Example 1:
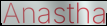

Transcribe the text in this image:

Anastha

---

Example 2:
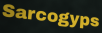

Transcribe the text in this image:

Sarcogyps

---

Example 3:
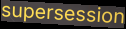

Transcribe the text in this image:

supersession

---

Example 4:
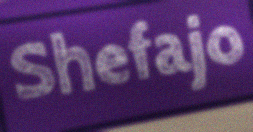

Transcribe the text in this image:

Shefajo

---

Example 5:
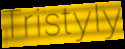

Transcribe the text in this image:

Tristyly